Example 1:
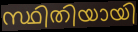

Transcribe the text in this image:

സ്ഥിതിയായി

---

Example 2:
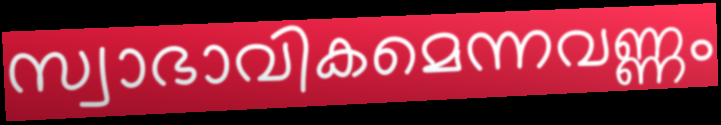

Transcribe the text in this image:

സ്വാഭാവികമെന്നവണ്ണം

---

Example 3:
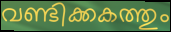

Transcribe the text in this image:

വണ്ടിക്കകത്തും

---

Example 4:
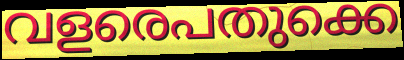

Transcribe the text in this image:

വളരെപതുക്കെ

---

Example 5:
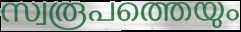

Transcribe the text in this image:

സ്വരൂപത്തെയും